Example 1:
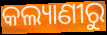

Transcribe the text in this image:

କଲ୍ୟାଣୀରୁ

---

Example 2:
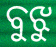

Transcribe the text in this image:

ବୁଝୁ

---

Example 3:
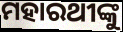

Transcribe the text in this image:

ମହାରଥୀଙ୍କୁ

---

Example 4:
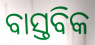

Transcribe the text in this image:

ବାସ୍ତବିକ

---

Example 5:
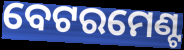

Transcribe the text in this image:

ବେଟରମେଣ୍ଟ